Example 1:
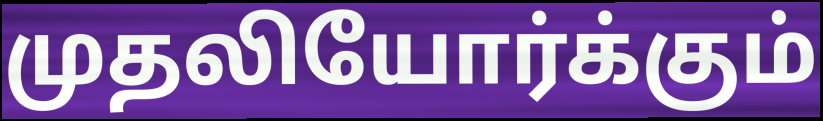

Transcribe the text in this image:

முதலியோர்க்கும்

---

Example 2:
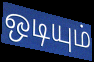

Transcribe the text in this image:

ஒடியும்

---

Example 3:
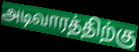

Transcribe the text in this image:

அடிவாரத்திற்கு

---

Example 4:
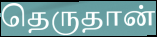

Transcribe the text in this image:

தெருதான்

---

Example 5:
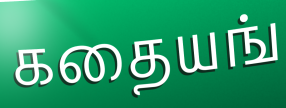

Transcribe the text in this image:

கதையங்